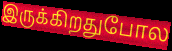
இருக்கிறதுபோல